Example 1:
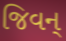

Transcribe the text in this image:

જિવન્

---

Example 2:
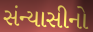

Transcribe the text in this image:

સંન્યાસીનો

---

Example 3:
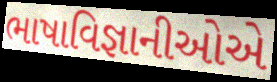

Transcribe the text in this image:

ભાષાવિજ્ઞાનીઓએ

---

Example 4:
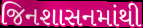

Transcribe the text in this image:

જિનશાસનમાંથી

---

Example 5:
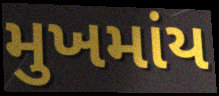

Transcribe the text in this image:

મુખમાંય